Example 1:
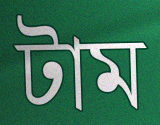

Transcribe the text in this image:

টাম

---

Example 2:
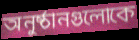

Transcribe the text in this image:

অনুষ্ঠানগুলোকে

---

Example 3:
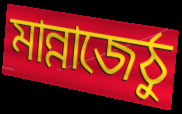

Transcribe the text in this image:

মান্নাজেঠু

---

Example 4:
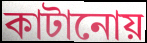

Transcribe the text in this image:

কাটানোয়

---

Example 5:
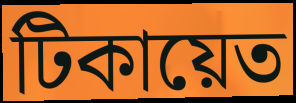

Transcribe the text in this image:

টিকায়েত